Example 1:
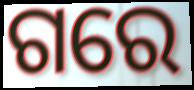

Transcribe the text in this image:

ଗରେ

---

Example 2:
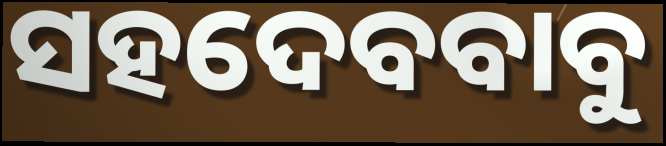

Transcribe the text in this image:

ସହଦେବବାବୁ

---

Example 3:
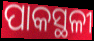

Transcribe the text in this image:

ପାକସ୍ଥଳୀ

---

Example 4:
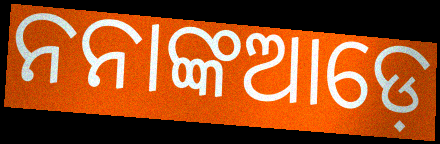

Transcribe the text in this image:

ନନାଙ୍କଆଡ଼େ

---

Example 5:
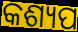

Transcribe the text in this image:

କଶ୍ୟପ